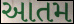
આતમ